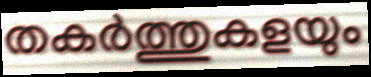
തകർത്തുകളയും